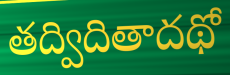
తద్విదితాదథో